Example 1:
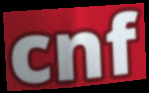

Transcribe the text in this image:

cnf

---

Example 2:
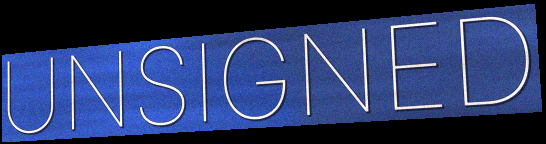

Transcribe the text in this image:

UNSIGNED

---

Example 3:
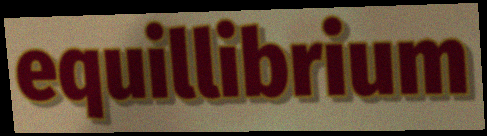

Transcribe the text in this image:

equillibrium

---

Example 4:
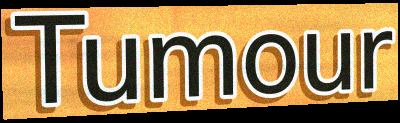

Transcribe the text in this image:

Tumour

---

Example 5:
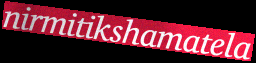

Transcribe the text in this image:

nirmitikshamatela